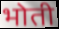
भोती